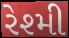
રેશ્મી